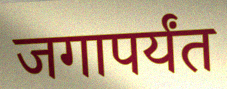
जगापर्यंत